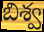
బిశ్వ